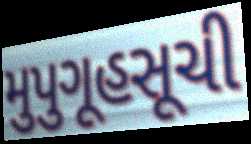
મુપુગૂહસૂચી